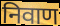
निवाण